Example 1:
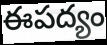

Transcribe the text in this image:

ఈపద్యం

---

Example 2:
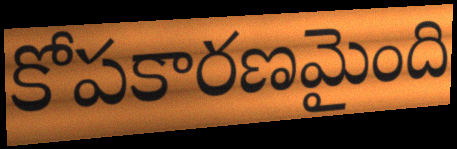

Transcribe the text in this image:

కోపకారణమైంది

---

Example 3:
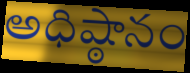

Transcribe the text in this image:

అధిష్ఠానం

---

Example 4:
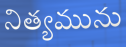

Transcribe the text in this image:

నిత్యమును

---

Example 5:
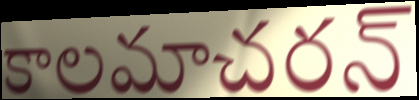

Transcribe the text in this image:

కాలమాచరన్